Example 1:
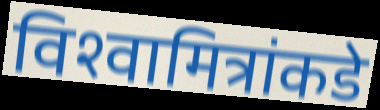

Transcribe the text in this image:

विश्वामित्रांकडे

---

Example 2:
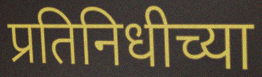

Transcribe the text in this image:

प्रतिनिधीच्या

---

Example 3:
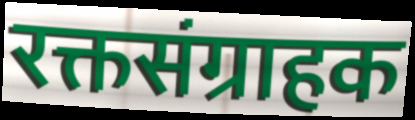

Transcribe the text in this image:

रक्तसंग्राहक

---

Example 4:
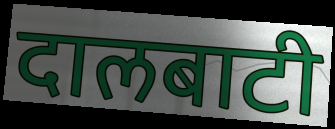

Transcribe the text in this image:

दालबाटी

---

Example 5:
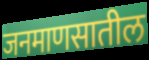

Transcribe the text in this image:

जनमाणसातील